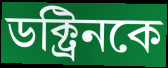
ডক্ট্রিনকে